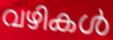
വഴികൾ